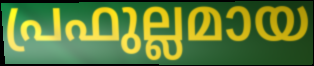
പ്രഫുല്ലമായ